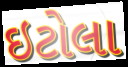
ઇટોલા